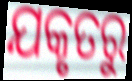
ଯକୃତରୁ